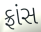
ફ્રાંસ